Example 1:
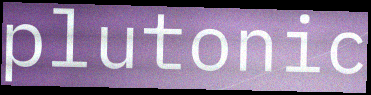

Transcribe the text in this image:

plutonic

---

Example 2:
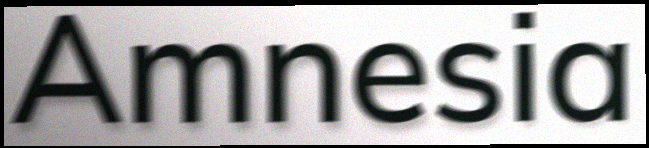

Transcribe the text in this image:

Amnesia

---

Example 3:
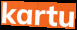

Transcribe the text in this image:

kartu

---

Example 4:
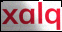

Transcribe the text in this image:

xalq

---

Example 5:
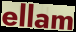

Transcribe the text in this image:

ellam